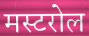
मस्टरोल